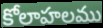
కోలాహలము